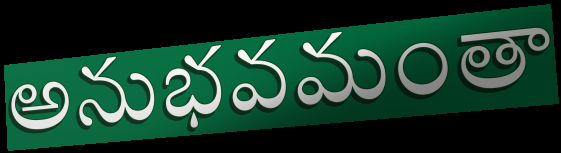
అనుభవమంతా